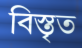
বিস্তৃত